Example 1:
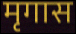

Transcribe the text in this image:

मृगास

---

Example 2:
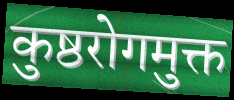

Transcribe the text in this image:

कुष्ठरोगमुक्त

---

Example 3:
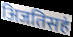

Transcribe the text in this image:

अिजतिसहं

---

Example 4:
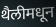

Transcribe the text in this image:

थैलीमधून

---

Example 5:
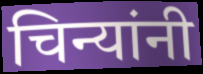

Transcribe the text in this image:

चिन्यांनी